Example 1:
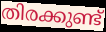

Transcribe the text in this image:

തിരക്കുണ്ട്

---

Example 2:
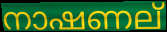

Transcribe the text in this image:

നാഷണല്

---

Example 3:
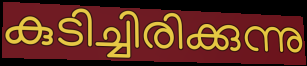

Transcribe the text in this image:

കുടിച്ചിരിക്കുന്നു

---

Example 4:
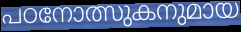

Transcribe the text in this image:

പഠനോത്സുകനുമായ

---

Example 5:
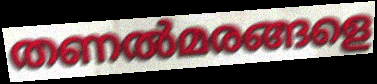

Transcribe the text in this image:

തണൽമരങ്ങളെ